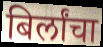
बिर्लांचा